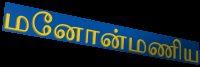
மனோன்மணிய